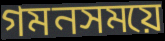
গমনসময়ে